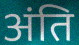
अंति